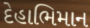
દેહાભિમાન